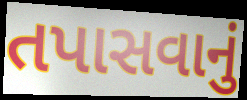
તપાસવાનું